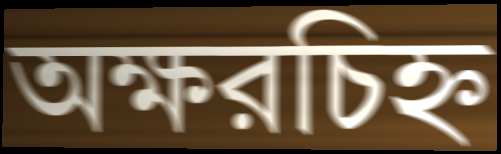
অক্ষরচিহ্ন